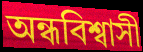
অন্ধবিশ্বাসী